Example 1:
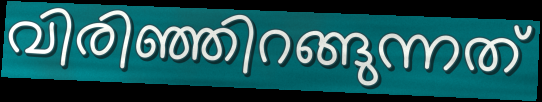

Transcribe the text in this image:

വിരിഞ്ഞിറങ്ങുന്നത്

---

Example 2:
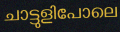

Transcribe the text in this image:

ചാട്ടുളിപോലെ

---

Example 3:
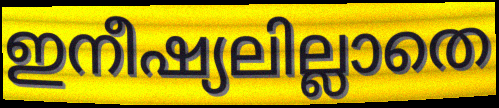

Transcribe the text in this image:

ഇനീഷ്യലില്ലാതെ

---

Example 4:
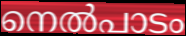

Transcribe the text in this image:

നെൽപാടം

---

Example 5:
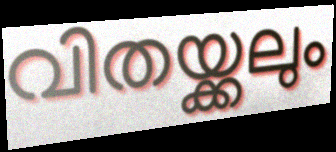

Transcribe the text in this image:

വിതയ്ക്കലും